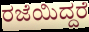
ರಜೆಯಿದ್ದರೆ